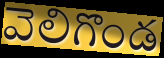
వెలిగొండ